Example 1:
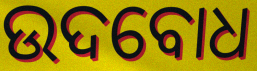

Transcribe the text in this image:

ଉଦବୋଧ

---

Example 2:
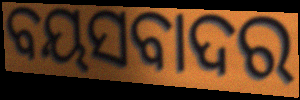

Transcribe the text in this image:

ବୟସବାଦର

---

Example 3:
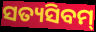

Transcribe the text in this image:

ସତ୍ୟସିବମ୍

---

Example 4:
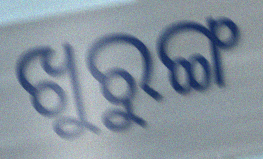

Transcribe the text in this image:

ଖୁରୁଙ୍ଗ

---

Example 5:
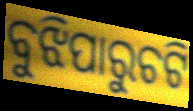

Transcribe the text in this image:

ବୁଝିପାରୁଚଟି